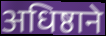
अधिष्ठाने